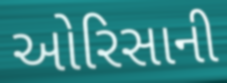
ઓરિસાની